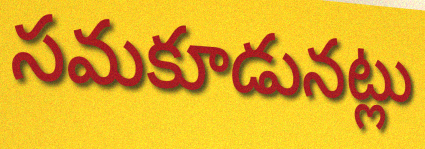
సమకూడునట్లు